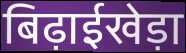
बिढ़ाईखेड़ा